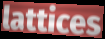
lattices